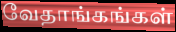
வேதாங்கங்கள்